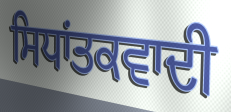
ਸਿਧਾਂਤਕਵਾਦੀ